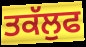
ਤਕੱਲੁਫ